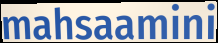
mahsaamini